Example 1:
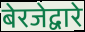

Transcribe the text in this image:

बेरजेद्वारे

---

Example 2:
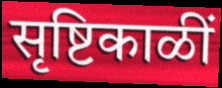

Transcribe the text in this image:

सृष्टिकाळीं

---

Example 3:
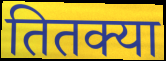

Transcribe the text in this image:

तितक्या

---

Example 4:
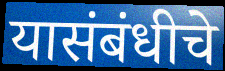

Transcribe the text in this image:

यासंबंधीचे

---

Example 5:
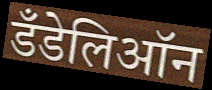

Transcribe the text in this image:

डँडेलिऑन